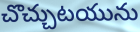
చొచ్చుటయును